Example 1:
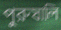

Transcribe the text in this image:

পুৰুষালি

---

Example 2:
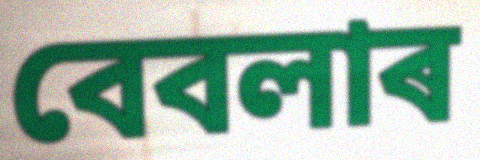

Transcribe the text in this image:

বেবলাৰ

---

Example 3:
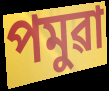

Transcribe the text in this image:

পমুৱা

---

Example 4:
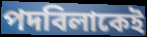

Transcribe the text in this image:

পদবিলাকেই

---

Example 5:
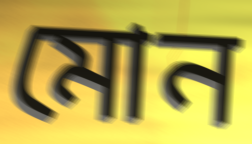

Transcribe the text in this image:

মোন